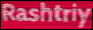
Rashtriy